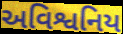
અવિશ્વનિય